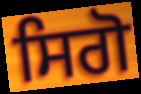
ਸਿਗੋ